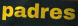
padres